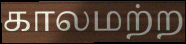
காலமற்ற